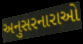
અનુસરનારાઓ